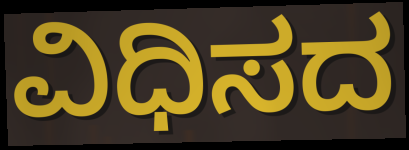
ವಿಧಿಸದ